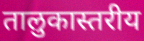
तालुकास्तरीय